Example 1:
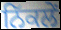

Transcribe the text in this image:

ਨਿੱਕਲੇਂ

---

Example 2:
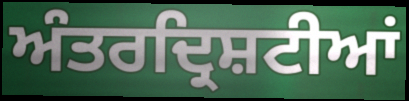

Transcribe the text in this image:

ਅੰਤਰਦ੍ਰਿਸ਼ਟੀਆਂ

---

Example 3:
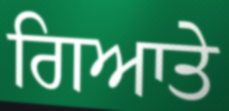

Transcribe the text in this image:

ਗਿਆਤੇ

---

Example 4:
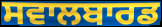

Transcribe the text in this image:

ਸਵਾਲਬਾਰਡ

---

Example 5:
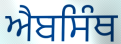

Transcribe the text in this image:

ਐਬਸਿੰਥ